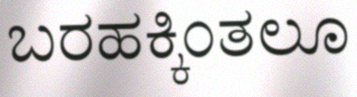
ಬರಹಕ್ಕಿಂತಲೂ